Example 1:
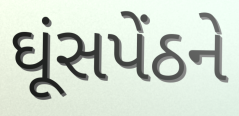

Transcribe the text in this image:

ઘૂંસપેંઠને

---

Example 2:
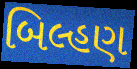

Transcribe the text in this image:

બિલ્હણ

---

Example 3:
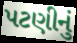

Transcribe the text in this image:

પટણીનું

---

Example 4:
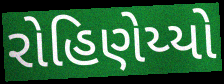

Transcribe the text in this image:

રોહિણેય્યો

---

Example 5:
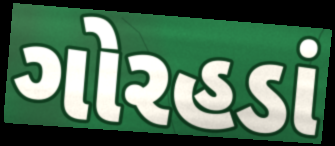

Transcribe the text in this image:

ગોરહડાં